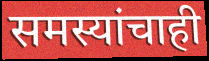
समस्यांचाही